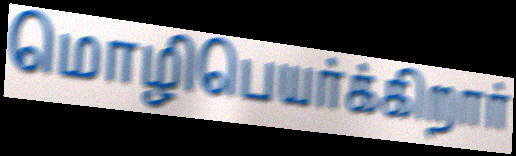
மொழிபெயர்க்கிறார்